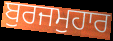
ਬੁਰਜਮੁਹਾਰ